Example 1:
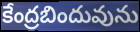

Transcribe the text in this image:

కేంద్రబిందువును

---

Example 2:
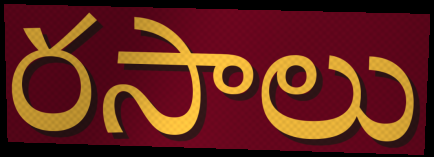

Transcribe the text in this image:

రసాలు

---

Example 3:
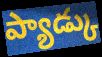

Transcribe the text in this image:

ప్యాడ్కు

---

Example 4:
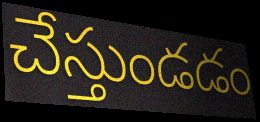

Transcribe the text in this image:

చేస్తుండడం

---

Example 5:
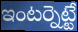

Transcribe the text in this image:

ఇంటర్నెట్టే